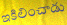
ఇకిలించాడు